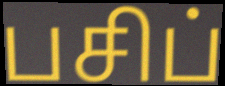
பசிப்